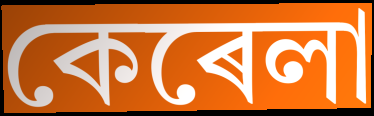
কেৰেলা